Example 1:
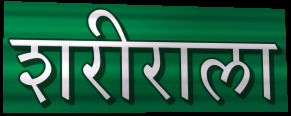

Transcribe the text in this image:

शरीराला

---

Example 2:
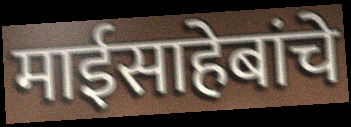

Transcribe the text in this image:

माईसाहेबांचे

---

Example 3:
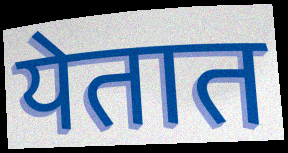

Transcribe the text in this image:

येतात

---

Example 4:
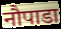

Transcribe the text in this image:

नौपाडा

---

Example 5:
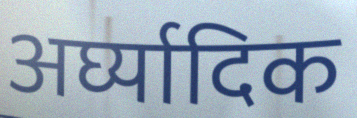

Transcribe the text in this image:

अर्घ्यादिक